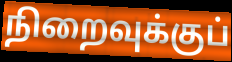
நிறைவுக்குப்